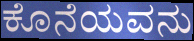
ಕೊನೆಯವನು